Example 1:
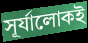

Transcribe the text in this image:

সূর্যালোকই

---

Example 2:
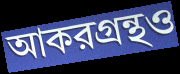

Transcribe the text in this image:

আকরগ্রন্থও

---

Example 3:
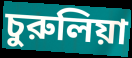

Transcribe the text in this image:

চুরুলিয়া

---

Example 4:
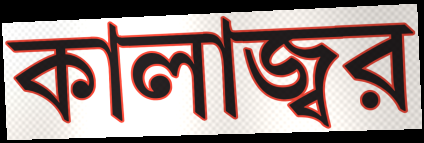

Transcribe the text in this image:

কালাজ্বর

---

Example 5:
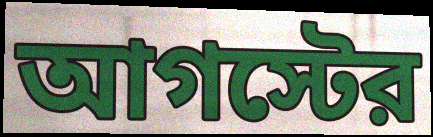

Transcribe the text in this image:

আগস্টের